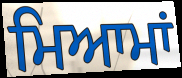
ਮਿਆਮਾਂ